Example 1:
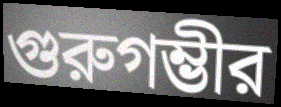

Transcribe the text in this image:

গুরুগম্ভীর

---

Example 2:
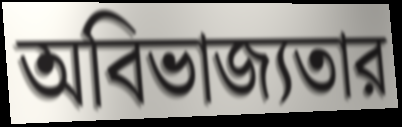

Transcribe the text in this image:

অবিভাজ্যতার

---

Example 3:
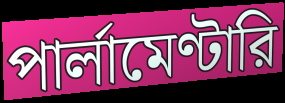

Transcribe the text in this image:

পার্লামেণ্টারি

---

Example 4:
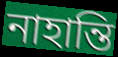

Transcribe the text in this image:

নাহান্তি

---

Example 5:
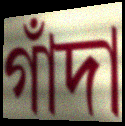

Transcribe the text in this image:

গাঁদা